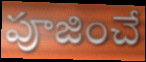
పూజించే